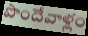
పొందేవాళ్లం